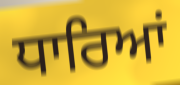
ਧਾਰਿਆਂ